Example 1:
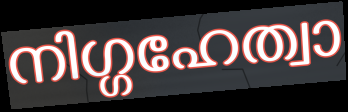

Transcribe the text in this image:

നിഗ്ഗഹേത്വാ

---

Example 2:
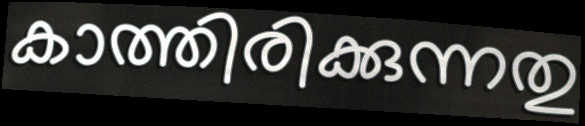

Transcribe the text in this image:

കാത്തിരിക്കുന്നതു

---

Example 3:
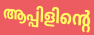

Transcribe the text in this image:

ആപ്പിളിന്റെ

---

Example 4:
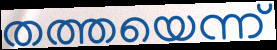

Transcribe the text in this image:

തത്തയെന്ന്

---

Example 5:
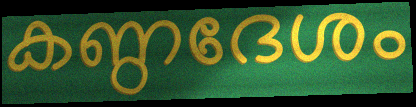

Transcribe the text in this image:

കണ്ഠദേശം